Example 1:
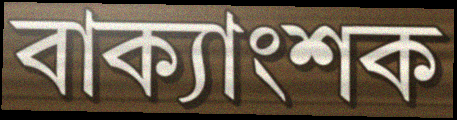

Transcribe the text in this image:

বাক্যাংশক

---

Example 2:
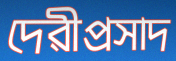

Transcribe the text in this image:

দেৱীপ্ৰসাদ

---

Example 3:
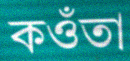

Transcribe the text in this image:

কওঁতা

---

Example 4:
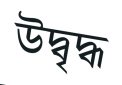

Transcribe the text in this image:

উদ্বৃদ্ধ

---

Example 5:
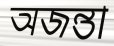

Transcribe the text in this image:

অজন্তা